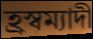
হ্ৰস্বম্যাদী